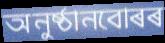
অনুষ্ঠানবোৰৰ